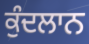
ਕੁੰਦਲਾਨ